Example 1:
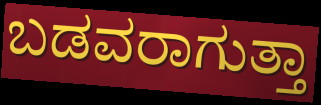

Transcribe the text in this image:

ಬಡವರಾಗುತ್ತಾ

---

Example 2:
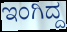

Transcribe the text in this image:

ಇಂಗಿದ್ದ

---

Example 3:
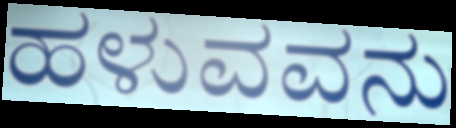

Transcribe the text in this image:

ಹಳುವವನು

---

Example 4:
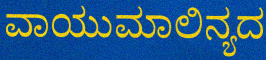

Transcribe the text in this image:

ವಾಯುಮಾಲಿನ್ಯದ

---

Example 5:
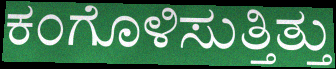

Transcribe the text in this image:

ಕಂಗೊಳಿಸುತ್ತಿತ್ತು